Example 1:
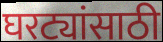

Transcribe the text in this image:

घरट्यांसाठी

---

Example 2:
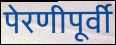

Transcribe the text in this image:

पेरणीपूर्वी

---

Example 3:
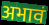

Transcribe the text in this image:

अभावं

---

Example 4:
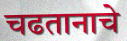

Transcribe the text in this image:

चढतानाचे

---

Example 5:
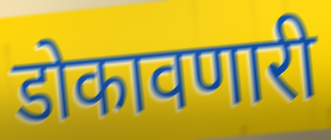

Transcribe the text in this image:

डोकावणारी